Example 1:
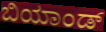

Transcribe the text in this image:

ಬಿಯಾಂಡ್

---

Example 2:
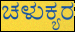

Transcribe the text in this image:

ಚಳುಕ್ಯರ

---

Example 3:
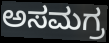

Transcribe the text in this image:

ಅಸಮಗ್ರ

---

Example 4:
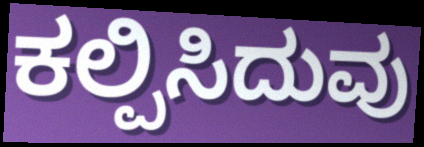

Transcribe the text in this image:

ಕಲ್ಪಿಸಿದುವು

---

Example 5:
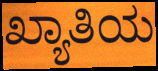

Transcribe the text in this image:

ಖ್ಯಾತಿಯ